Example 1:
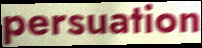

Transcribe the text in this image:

persuation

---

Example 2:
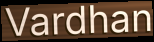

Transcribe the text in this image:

Vardhan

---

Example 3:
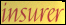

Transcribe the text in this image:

insurer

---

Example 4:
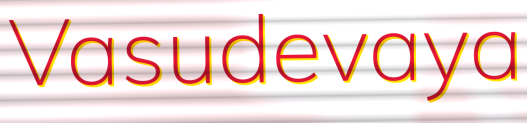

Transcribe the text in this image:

Vasudevaya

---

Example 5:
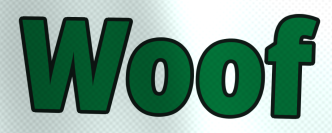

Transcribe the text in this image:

Woof